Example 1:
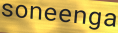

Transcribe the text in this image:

soneenga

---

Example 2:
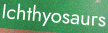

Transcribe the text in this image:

Ichthyosaurs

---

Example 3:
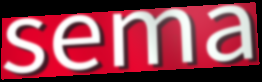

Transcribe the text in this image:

sema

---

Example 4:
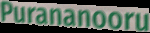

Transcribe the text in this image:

Purananooru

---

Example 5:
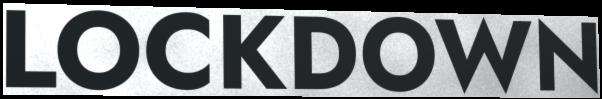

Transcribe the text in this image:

LOCKDOWN